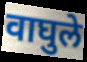
वाघुले